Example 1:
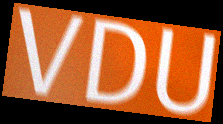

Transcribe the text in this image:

VDU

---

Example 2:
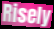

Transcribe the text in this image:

Risely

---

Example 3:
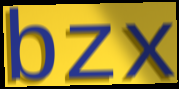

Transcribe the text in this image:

bzx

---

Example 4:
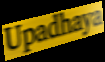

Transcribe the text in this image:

Upadhaya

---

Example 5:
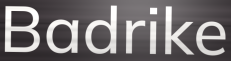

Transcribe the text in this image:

Badrike